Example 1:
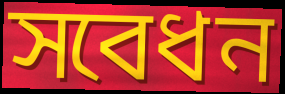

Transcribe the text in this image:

সবেধন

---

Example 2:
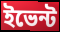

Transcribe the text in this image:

ইভেন্ট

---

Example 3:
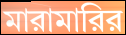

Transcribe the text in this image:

মারামারির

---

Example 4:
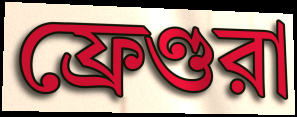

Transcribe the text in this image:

ফ্রেণ্ডরা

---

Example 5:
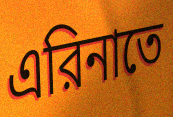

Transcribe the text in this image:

এরিনাতে